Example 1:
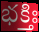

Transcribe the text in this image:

భక్తిః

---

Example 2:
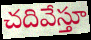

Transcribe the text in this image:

చదివేస్తూ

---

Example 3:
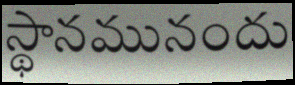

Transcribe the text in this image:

స్థానమునందు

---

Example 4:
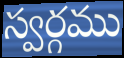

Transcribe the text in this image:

స్వర్గము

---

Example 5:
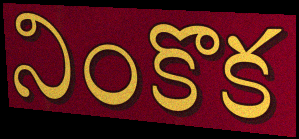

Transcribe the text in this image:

నింకొక